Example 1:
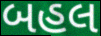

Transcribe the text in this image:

બહલ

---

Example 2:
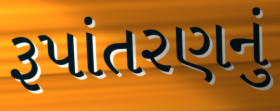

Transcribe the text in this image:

રૂપાંતરણનું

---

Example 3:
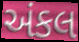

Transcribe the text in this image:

અંકલ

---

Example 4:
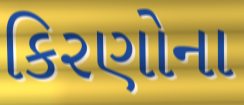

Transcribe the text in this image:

કિરણોના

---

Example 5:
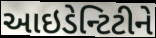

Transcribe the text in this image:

આઇડેન્ટિટીને